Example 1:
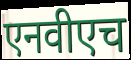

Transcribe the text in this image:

एनवीएच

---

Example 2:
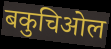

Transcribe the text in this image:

बकुचिओल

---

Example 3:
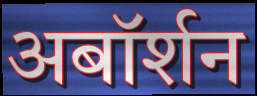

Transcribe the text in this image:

अबॉर्शन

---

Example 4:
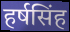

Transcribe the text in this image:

हर्षसिंह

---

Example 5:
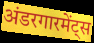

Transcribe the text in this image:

अंडरगारमेंट्स